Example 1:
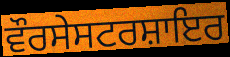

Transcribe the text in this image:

ਵੌਰਸੇਸਟਰਸ਼ਾਇਰ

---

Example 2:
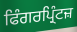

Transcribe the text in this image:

ਫਿੰਗਰਪ੍ਰਿੰਟਜ਼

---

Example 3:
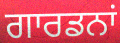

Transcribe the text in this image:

ਗਾਰਡਨਾਂ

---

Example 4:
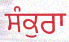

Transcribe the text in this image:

ਸੰਕੁਰਾ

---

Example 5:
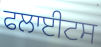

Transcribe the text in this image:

ਫਲਾਈਟਸ